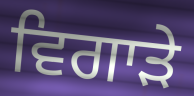
ਵਿਗਾੜੇ